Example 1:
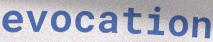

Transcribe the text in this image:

evocation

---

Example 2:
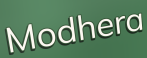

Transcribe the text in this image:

Modhera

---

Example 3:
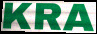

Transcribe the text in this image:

KRA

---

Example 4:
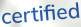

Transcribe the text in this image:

certified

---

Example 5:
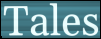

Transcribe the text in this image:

Tales